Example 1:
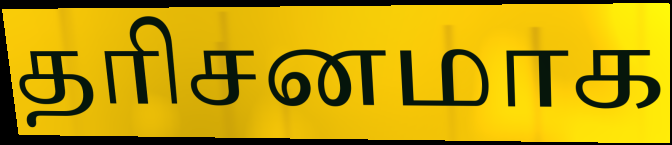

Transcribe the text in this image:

தரிசனமாக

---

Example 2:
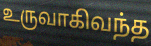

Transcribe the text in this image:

உருவாகிவந்த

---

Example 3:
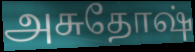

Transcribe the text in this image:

அசுதோஷ்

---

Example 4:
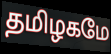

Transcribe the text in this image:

தமிழகமே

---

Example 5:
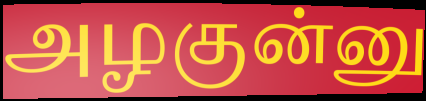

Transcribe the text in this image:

அழகுன்னு